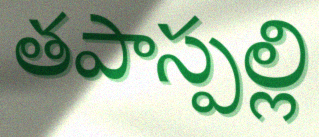
తపాస్పల్లి